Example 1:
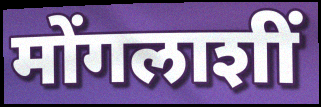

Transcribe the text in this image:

मोंगलाशीं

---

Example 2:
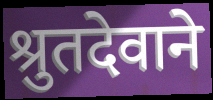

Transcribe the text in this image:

श्रुतदेवाने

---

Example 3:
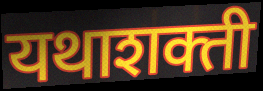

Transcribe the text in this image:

यथाशक्‍ती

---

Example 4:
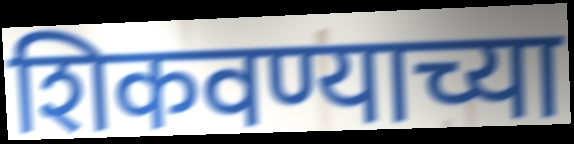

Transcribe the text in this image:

शिकवण्याच्या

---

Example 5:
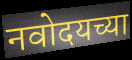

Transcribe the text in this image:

नवोदयच्या